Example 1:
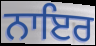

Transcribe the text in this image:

ਨਾਇਰ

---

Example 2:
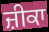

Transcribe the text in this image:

ਜ਼ੀਕਾ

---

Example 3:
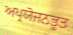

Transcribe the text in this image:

ਅਪ੍ਰਯੋਜਨਭੂਤ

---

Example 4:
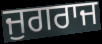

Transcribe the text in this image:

ਜੁਗਰਾਜ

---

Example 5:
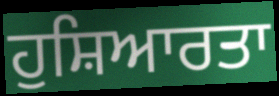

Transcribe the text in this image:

ਹੁਸ਼ਿਆਰਤਾ